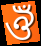
ঔঁ